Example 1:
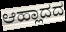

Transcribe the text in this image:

ಆಹ್ಲಾದದ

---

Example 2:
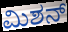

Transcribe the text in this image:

ಮಿಶನ್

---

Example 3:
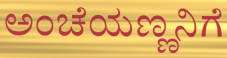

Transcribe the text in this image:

ಅಂಚೆಯಣ್ಣನಿಗೆ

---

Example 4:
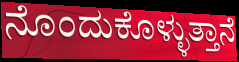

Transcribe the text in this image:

ನೊಂದುಕೊಳ್ಳುತ್ತಾನೆ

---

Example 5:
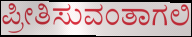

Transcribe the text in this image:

ಪ್ರೀತಿಸುವಂತಾಗಲಿ